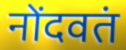
नोंदवतं